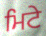
ਮਿਟੇ